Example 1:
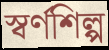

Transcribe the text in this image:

স্বর্ণশিল্প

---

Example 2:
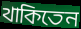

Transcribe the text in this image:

থাকিতেন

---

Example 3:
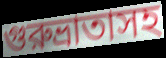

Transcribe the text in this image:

গুরুভ্রাতাসহ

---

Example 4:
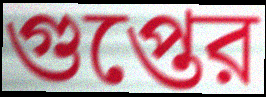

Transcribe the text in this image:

গুপ্তের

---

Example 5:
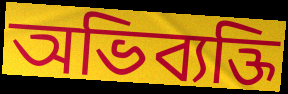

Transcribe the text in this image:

অভিব্যক্তি